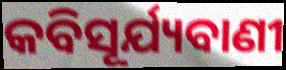
କବିସୂର୍ଯ୍ୟବାଣୀ